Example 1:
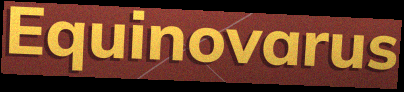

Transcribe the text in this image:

Equinovarus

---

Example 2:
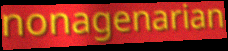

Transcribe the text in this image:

nonagenarian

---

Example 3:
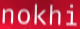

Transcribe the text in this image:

nokhi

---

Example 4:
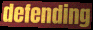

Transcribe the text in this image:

defending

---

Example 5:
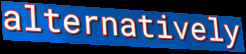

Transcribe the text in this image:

alternatively